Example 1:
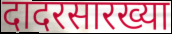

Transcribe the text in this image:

दादरसारख्या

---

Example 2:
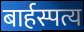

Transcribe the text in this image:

बार्हस्पत्य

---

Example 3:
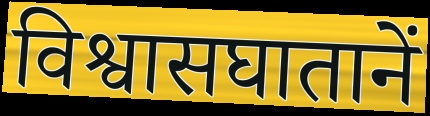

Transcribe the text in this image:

विश्वासघातानें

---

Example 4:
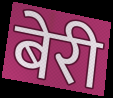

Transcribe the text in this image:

बेरी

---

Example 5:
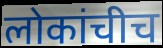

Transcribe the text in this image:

लोकांचीच